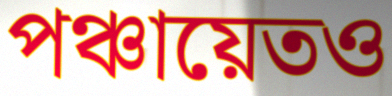
পঞ্চায়েতও